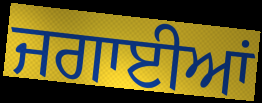
ਜਗਾਈਆਂ